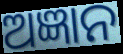
ଅଜ୍ଞାନ